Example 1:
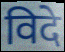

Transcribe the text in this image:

विदे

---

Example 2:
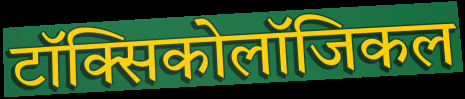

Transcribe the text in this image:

टॉक्सिकोलॉजिकल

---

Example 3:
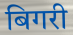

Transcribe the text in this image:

बिगरी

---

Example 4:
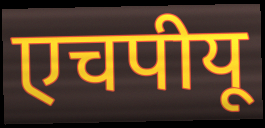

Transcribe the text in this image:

एचपीयू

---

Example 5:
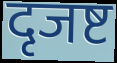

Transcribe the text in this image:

दृजष्ट